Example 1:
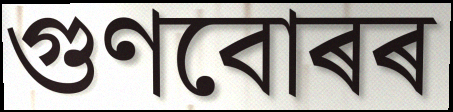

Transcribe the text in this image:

গুণবোৰৰ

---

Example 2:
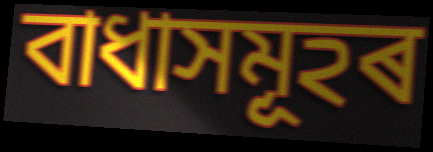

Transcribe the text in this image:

বাধাসমূহৰ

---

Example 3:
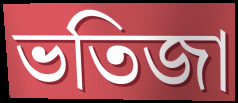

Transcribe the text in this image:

ভতিজা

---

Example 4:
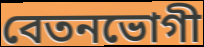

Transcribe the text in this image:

বেতনভোগী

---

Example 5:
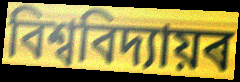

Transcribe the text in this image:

বিশ্ববিদ্যায়ৰ